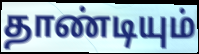
தாண்டியும்